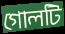
গোলটি